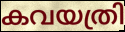
കവയത്രി